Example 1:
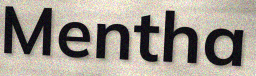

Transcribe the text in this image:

Mentha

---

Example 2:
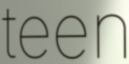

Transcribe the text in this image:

teen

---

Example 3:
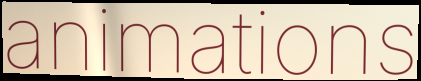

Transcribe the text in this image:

animations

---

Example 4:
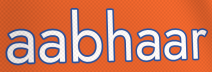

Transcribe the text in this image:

aabhaar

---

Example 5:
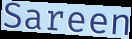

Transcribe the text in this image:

Sareen